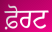
ਫ਼ੋਰਟ